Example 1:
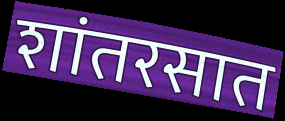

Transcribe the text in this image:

शांतरसात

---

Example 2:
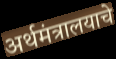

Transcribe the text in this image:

अर्थमंत्रालयाचे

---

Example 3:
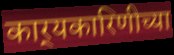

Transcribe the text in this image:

कार्यकारिणीच्या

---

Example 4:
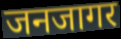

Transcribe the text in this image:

जनजागर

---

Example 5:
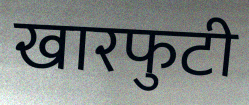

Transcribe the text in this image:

खारफुटी